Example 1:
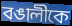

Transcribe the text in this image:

বঙালীকে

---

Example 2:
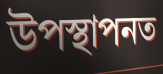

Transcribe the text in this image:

উপস্থাপনত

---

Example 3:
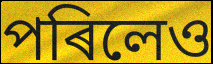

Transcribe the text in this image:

পৰিলেও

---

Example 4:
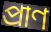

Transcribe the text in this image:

প্ৰাণ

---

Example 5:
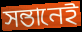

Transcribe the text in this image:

সন্তানেই